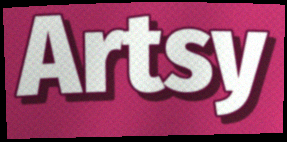
Artsy